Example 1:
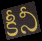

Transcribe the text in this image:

కీనీ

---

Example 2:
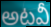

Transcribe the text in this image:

అటవీ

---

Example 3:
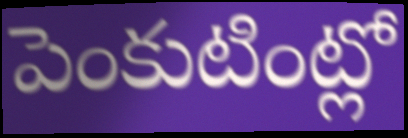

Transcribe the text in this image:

పెంకుటింట్లో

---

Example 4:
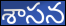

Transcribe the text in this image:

శాసన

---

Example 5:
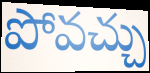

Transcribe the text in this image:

పోవచ్చు